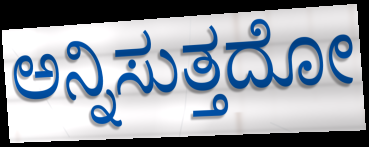
ಅನ್ನಿಸುತ್ತದೋ